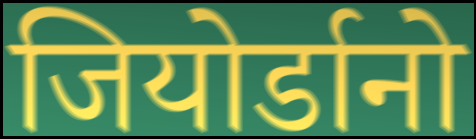
जियोर्डानो